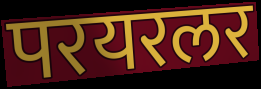
परयरलर